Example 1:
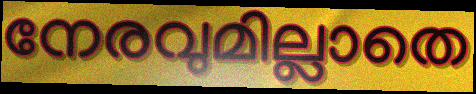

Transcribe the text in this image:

നേരവുമില്ലാതെ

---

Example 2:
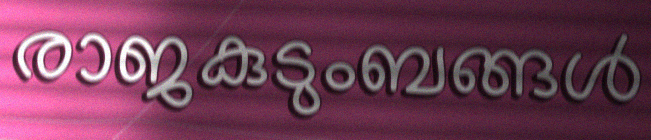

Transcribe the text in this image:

രാജകുടുംബങ്ങൾ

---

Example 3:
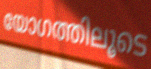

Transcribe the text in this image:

യോഗത്തിലൂടെ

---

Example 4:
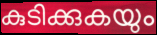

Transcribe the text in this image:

കുടിക്കുകയും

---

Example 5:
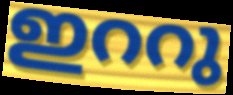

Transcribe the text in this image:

ഇററു